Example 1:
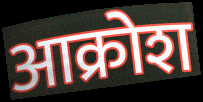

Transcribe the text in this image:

आक्रोश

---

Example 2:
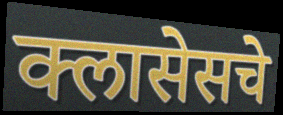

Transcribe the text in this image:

क्लासेसचे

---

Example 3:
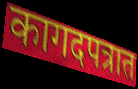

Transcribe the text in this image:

कागदपत्रात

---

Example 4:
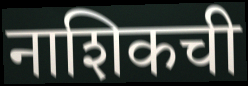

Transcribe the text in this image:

नाशिकची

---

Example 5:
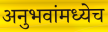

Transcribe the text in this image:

अनुभवांमध्येच